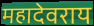
महादेवराय